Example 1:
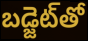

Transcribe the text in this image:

బడ్జెట్‌తో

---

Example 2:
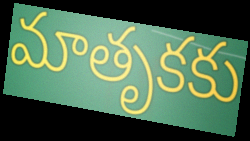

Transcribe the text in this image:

మాతృకకు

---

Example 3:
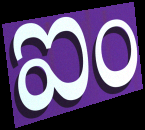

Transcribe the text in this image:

ఐం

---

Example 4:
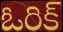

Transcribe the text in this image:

ఓరిక్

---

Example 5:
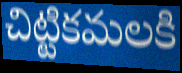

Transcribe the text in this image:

చిట్టికమలకి